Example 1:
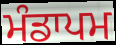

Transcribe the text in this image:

ਮੰਡਾਪਮ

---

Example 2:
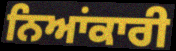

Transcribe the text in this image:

ਨਿਆਂਕਾਰੀ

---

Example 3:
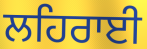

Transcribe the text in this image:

ਲਹਿਰਾਈ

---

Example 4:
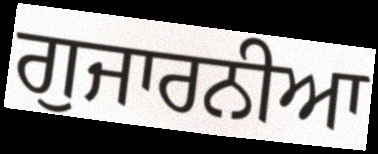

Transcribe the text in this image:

ਗੁਜਾਰਨੀਆ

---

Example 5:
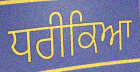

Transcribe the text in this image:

ਧਰੀਕਿਆ